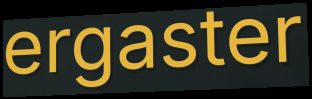
ergaster